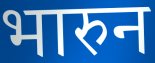
भारुन